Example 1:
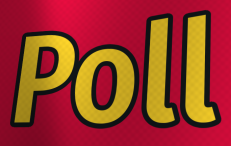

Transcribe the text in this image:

Poll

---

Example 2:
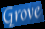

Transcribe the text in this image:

Grove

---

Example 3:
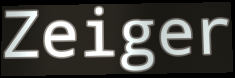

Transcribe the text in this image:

Zeiger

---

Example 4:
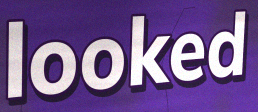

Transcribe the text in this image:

looked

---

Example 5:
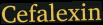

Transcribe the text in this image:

Cefalexin